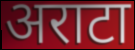
अराटा